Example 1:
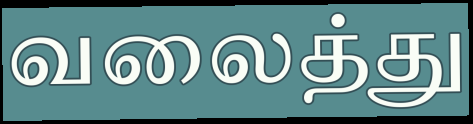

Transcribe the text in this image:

வலைத்து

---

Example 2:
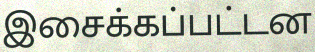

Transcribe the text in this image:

இசைக்கப்பட்டன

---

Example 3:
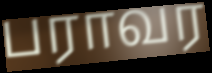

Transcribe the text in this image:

பராவர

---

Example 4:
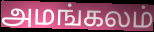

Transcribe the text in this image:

அமங்கலம்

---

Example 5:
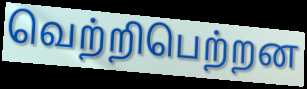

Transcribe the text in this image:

வெற்றிபெற்றன